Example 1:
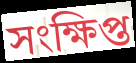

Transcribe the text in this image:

সংক্ষিপ্ত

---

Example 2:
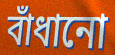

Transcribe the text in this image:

বাঁধানো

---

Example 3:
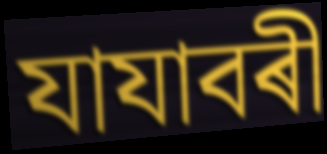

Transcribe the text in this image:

যাযাবৰী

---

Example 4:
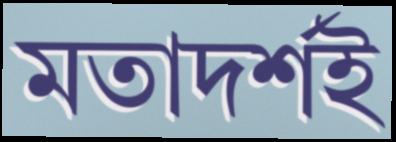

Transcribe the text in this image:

মতাদৰ্শই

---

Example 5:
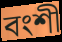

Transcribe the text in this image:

বংশী